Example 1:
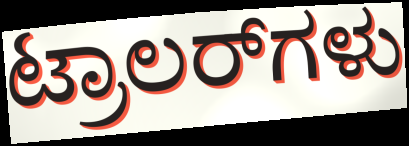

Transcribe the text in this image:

ಟ್ರಾಲರ್‌ಗಳು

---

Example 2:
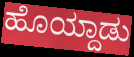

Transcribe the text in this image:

ಹೊಯ್ದಾಡು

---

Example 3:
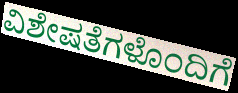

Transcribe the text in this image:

ವಿಶೇಷತೆಗಳೊಂದಿಗೆ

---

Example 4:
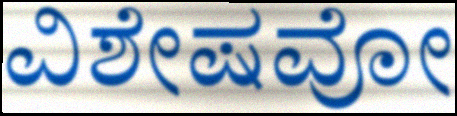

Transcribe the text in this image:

ವಿಶೇಷವೋ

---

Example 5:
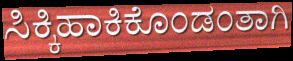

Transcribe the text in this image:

ಸಿಕ್ಕಿಹಾಕಿಕೊಂಡಂತಾಗಿ